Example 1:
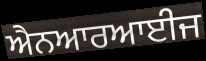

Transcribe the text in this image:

ਐਨਆਰਆਈਜ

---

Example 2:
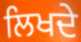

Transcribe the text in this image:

ਲਿਖਦੇ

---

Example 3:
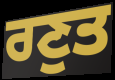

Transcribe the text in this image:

ਰਣੁਤ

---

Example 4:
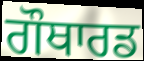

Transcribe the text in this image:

ਗੌਥਾਰਡ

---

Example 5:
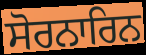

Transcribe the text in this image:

ਸੋਰਨਾਰਿਨ